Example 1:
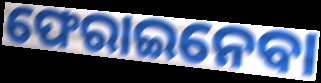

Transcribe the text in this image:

ଫେରାଇନେବା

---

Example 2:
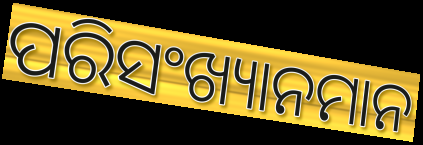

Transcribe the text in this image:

ପରିସଂଖ୍ୟାନମାନ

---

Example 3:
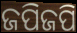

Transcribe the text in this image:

ଜପିଜପି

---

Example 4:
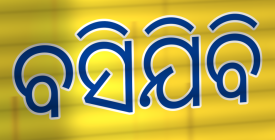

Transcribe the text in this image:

ବସିଯିବି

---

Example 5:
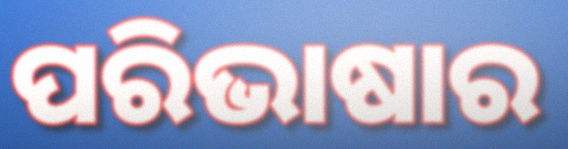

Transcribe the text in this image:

ପରିଭାଷାର